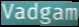
Vadgam